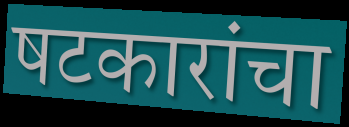
षटकारांचा